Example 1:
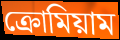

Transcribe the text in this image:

ক্রোমিয়াম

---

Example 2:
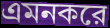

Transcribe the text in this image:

এমনকরে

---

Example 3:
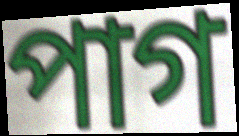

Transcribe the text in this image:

পাগ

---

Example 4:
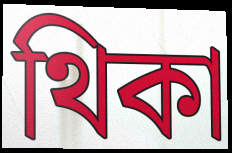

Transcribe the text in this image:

থিকা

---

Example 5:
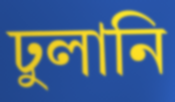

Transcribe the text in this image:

ঢুলানি